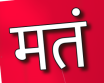
मतं